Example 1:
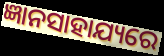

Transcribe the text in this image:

ଜ୍ଞାନସାହାଯ୍ୟରେ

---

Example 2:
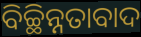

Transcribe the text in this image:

ବିଚ୍ଛିନ୍ନତାବାଦ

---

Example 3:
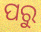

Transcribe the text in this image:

ପରୁ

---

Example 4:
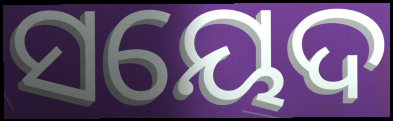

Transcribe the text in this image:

ସୟେଦ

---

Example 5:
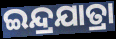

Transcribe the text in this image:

ଇନ୍ଦ୍ରଯାତ୍ରା